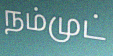
நம்முட்